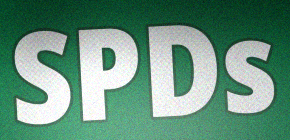
SPDs